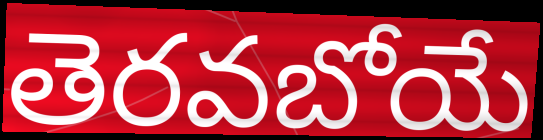
తెరవబోయే